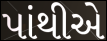
પાંથીએ